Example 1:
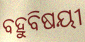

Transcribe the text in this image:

ବହୁବିଷୟୀ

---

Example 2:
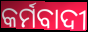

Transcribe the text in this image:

କର୍ମବାଦୀ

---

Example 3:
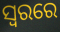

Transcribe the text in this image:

ସ୍ବରରେ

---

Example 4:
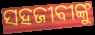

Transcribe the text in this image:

ସହଜୀବୀଙ୍କୁ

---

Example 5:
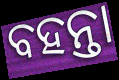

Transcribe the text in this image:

ବହନ୍ତା